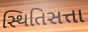
સ્થિતિસત્તા